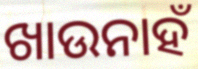
ଖାଉନାହଁ